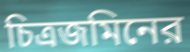
চিত্রজমিনের